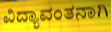
ವಿದ್ಯಾವಂತನಾಗಿ